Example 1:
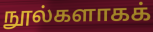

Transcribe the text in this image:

நூல்களாகக்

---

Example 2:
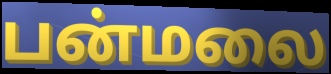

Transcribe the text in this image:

பன்மலை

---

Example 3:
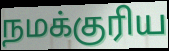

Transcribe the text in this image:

நமக்குரிய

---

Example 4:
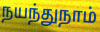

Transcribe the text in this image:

நயந்துநாம்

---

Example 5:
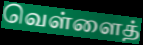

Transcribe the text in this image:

வெள்ளைத்